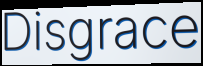
Disgrace